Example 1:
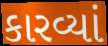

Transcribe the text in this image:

કારવ્યાં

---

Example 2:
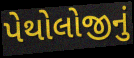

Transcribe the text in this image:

પેથોલોજીનું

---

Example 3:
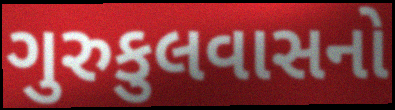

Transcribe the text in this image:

ગુરુકુલવાસનો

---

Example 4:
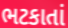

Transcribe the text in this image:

ભટકાતાં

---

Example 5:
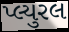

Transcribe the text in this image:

પ્લ્યુરલ